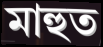
মাহুত